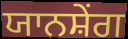
ਯਾਨਸ਼ੇਂਗ